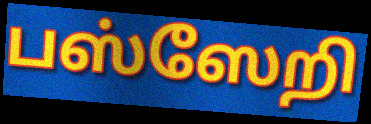
பஸ்ஸேறி